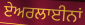
ਏਅਰਲਾਈਨਾਂ